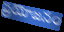
ప్రయోజనం